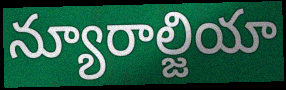
న్యూరాల్జియా